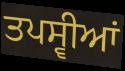
ਤਪਸ੍ਵੀਆਂ